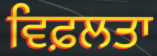
ਵਿਫ਼ਲਤਾ